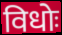
विधोः